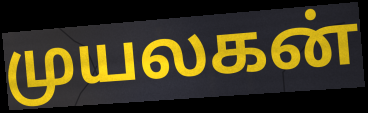
முயலகன்